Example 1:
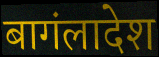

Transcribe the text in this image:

बागंलादेश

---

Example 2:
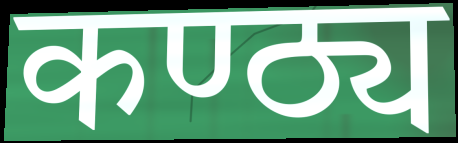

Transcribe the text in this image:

कण्ठ्य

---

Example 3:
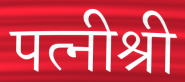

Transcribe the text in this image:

पत्नीश्री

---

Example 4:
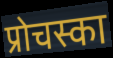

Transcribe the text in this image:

प्रोचस्का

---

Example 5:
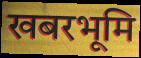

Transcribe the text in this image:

खबरभूमि